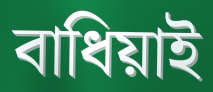
বাধিয়াই